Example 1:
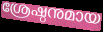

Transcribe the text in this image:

ശ്രേഷ്ഠനുമായ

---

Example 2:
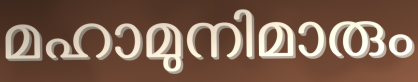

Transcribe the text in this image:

മഹാമുനിമാരും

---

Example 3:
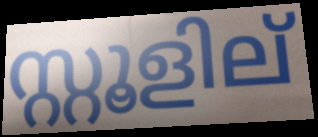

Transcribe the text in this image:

സ്റ്റൂളില്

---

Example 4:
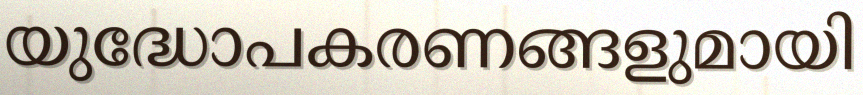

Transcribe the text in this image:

യുദ്ധോപകരണങ്ങളുമായി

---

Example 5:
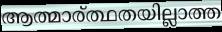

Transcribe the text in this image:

ആത്മാര്ത്ഥതയില്ലാത്ത